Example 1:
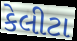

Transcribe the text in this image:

કેલીટા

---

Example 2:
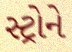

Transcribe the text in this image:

સ્ટ્રોને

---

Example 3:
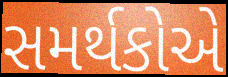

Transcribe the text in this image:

સમર્થકોએ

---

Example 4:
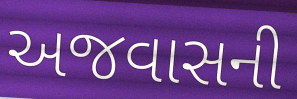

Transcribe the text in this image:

અજવાસની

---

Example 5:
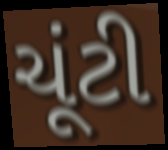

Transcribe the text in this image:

ચૂંટી